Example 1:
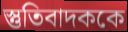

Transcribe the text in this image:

স্তুতিবাদককে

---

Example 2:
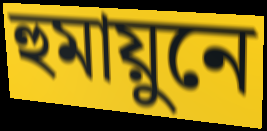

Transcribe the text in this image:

হুমায়ুনে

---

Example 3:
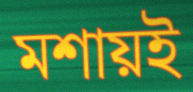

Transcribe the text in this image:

মশায়ই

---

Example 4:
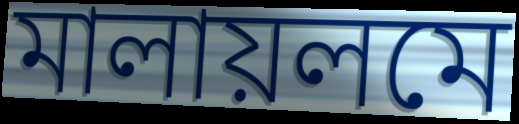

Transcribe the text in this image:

মালায়লমে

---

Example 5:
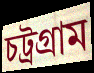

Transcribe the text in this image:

চট্রগ্রাম